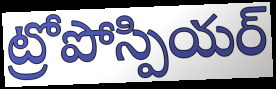
ట్రోపోస్పియర్